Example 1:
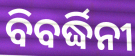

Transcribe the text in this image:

ବିବର୍ଦ୍ଧିନୀ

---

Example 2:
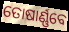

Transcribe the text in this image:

ତୋଷାର୍ଣ୍ଣବେ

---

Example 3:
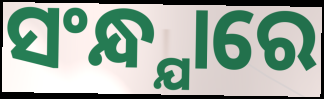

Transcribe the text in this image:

ସଂନ୍ଧ୍ଯାରେ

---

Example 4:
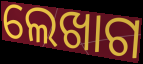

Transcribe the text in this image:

ଲେଖାଗ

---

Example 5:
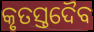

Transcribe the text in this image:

କୃତସ୍ତଦୈବ